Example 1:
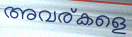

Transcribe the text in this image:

അവര്കളെ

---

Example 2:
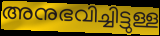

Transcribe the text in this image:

അനുഭവിച്ചിട്ടുള്ള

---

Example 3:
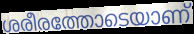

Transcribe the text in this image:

ശരീരത്തോടെയാണ്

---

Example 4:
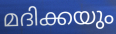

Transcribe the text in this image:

മദിക്കയും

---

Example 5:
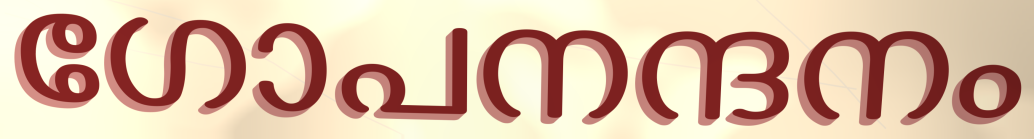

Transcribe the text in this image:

ഗോപനന്ദനം